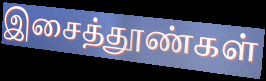
இசைத்தூண்கள்